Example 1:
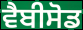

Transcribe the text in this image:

ਵੈਬੀਸੋਡ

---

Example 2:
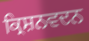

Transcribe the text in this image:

ਕ੍ਰਿਸ਼ਨਵਦਨ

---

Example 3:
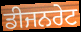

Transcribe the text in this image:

ਡੀਜਨਰੇਟ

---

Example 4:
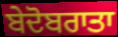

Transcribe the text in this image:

ਬੇਦੋਬਰਾਤਾ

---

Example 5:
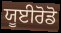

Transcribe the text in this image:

ਯੂਈਰੋਡੋ